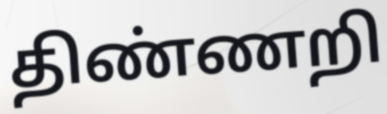
திண்ணறி